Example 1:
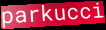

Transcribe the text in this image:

parkucci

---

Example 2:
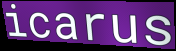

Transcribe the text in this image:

icarus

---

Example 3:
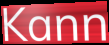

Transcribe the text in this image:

Kann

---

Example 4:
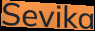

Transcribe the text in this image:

Sevika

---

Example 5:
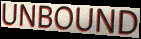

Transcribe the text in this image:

UNBOUND